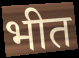
भीत